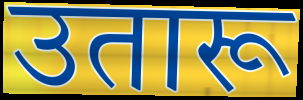
उतारू